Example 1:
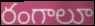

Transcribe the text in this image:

రంగాలూ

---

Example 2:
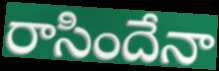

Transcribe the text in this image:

రాసిందేనా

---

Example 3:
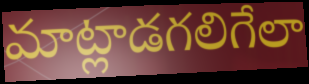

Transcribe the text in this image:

మాట్లాడగలిగేలా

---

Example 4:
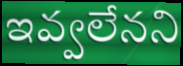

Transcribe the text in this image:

ఇవ్వలేనని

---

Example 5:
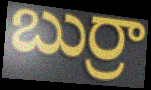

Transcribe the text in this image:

బుర్రా